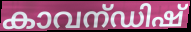
കാവന്ഡിഷ്